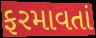
ફરમાવતાં